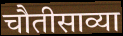
चौतीसाव्या